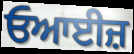
ਓਆਈਜ਼